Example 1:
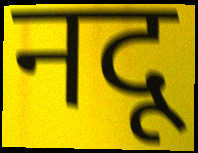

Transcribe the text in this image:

नदू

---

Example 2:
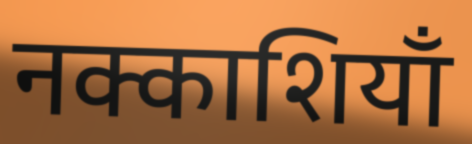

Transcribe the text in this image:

नक्काशियाँ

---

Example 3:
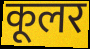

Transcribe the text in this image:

कूलर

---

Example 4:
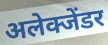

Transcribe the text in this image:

अलेक्जेंडर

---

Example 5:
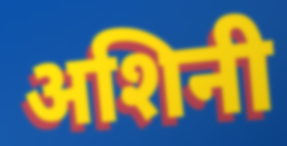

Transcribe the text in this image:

अशिनी